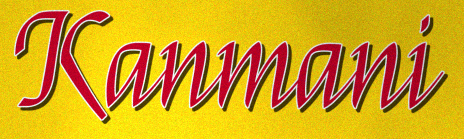
Kanmani